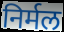
निर्मल